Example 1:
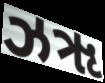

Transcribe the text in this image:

ઝૠ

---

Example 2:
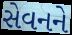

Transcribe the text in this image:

સેવનને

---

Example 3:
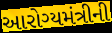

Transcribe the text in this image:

આરોગ્યમંત્રીની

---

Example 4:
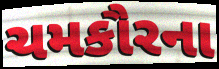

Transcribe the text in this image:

ચમકૌરના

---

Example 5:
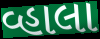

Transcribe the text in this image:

વ્હાલા